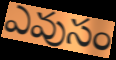
ఎవుసం